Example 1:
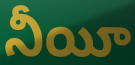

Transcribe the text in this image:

నీయీ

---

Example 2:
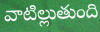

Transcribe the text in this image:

వాటిల్లుతుంది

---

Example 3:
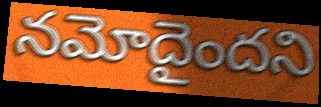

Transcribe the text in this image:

నమోదైందని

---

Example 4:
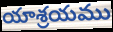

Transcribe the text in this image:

యాశ్రయము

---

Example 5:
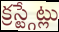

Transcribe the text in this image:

క్రస్ట్గేట్లు